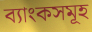
ব্যাংকসমূহ